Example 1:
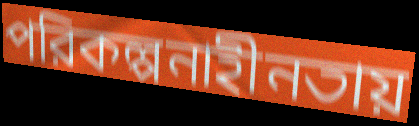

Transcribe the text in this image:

পরিকল্পনাহীনতায়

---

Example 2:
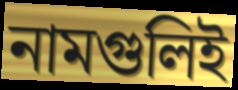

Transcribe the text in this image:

নামগুলিই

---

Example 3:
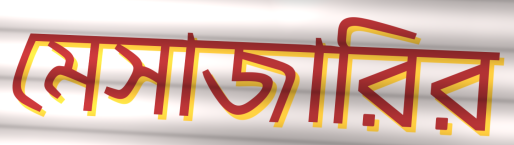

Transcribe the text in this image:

মেসাজারির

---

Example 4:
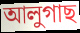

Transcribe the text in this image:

আলুগাছ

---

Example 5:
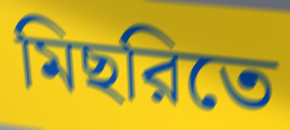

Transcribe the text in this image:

মিছরিতে